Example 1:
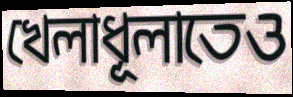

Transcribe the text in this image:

খেলাধূলাতেও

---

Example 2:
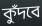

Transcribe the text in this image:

কুঁদবে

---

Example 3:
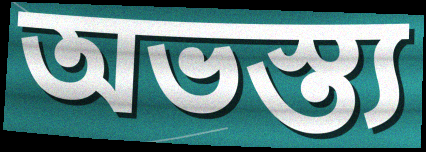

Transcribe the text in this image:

অভস্ত্য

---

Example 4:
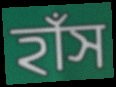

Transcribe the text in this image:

হাঁস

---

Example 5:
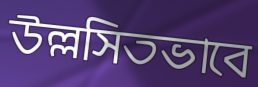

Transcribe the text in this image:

উল্লসিতভাবে